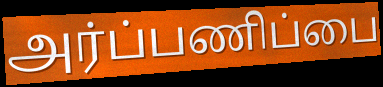
அர்ப்பணிப்பை